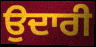
ਉਦਾਰੀ